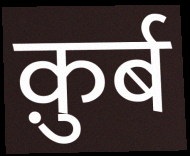
क़ुर्ब